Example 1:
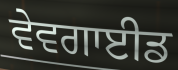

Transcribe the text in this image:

ਵੇਵਗਾਈਡ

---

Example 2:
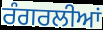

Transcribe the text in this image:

ਰੰਗਰਲੀਆਂ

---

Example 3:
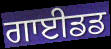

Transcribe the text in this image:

ਗਾਈਡਡ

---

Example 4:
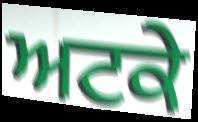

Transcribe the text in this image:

ਅਟਕੇ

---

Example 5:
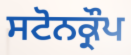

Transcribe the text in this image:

ਸਟੋਨਕ੍ਰੌਪ